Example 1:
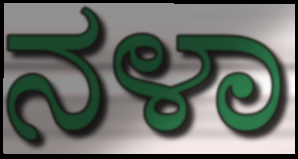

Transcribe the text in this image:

ನಳಾ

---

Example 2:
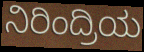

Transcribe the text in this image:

ನಿರಿಂದ್ರಿಯ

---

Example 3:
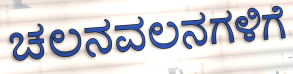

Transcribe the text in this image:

ಚಲನವಲನಗಳಿಗೆ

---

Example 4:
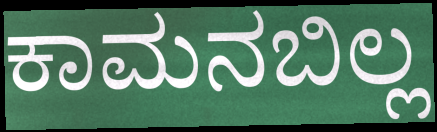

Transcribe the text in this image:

ಕಾಮನಬಿಲ್ಲ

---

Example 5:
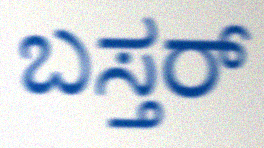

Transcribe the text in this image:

ಬಸ್ತರ್